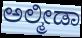
ಅಲ್ಮೀಡಾ